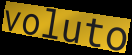
voluto